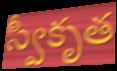
స్వీకృత